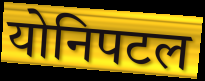
योनिपटल